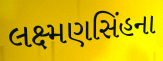
લક્ષ્મણસિંહના